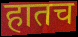
हातच